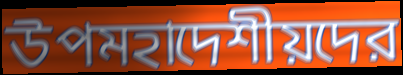
উপমহাদেশীয়দের